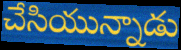
చేసియున్నాడు